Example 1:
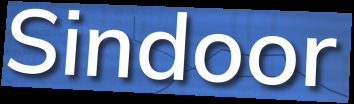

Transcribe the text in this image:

Sindoor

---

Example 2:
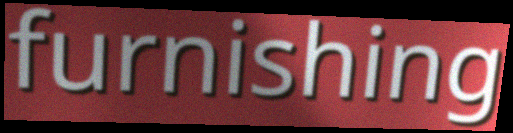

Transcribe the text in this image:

furnishing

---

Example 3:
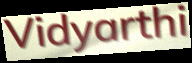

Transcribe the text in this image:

Vidyarthi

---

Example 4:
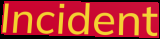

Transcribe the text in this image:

Incident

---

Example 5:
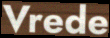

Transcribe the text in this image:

Vrede